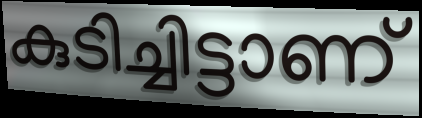
കുടിച്ചിട്ടാണ്